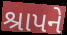
શ્રાપને